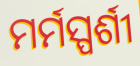
ମର୍ମସ୍ପର୍ଶୀ